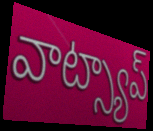
వాట్స్యాప్